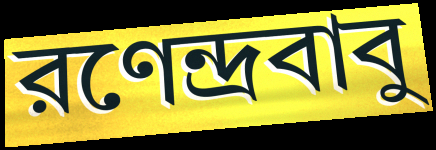
রণেন্দ্রবাবু